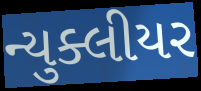
ન્યુક્લીયર